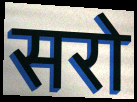
सरो